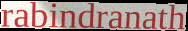
rabindranath